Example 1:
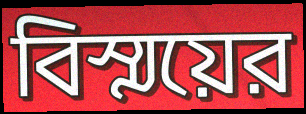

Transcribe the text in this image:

বিস্ময়ের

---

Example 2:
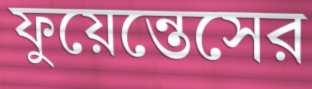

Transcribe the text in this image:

ফুয়েন্তেসের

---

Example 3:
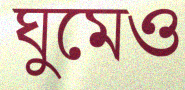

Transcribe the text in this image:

ঘুমেও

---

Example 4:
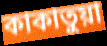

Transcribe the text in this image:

কাকাতুয়া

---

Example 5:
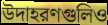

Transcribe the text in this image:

উদাহরণগুলিও